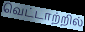
வெட்டாற்றில்